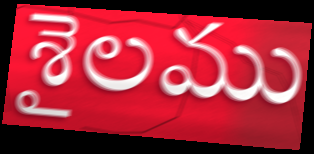
శైలము